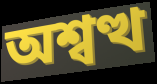
অশ্বত্থ